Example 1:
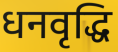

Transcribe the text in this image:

धनवृद्धि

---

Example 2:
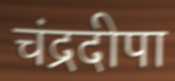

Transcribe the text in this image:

चंद्रदीपा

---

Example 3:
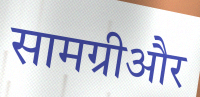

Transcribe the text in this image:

सामग्रीऔर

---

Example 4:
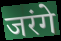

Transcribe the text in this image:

जरंगे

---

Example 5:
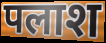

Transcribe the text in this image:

पलाश